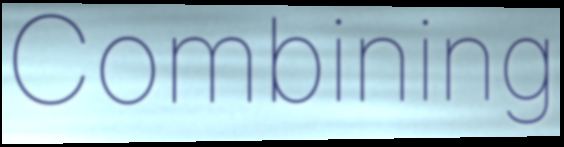
Combining